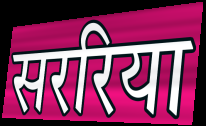
सररिया